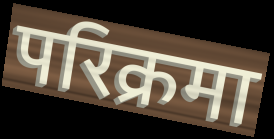
परिक्रमा